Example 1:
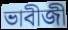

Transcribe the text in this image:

ভাবীজী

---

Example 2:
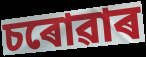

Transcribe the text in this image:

চৰোৱাৰ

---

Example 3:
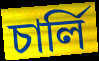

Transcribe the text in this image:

চাৰ্লি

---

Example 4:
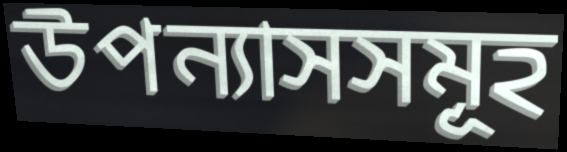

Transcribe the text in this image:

উপন্যাসসমূহ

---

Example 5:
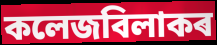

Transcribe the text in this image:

কলেজবিলাকৰ